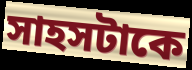
সাহসটাকে